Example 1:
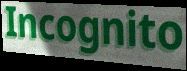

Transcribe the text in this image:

Incognito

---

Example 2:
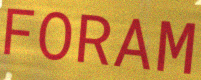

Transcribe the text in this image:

FORAM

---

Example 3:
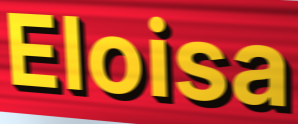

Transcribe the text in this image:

Eloisa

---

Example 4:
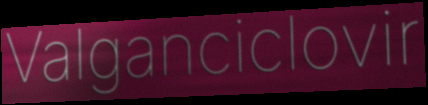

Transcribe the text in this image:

Valganciclovir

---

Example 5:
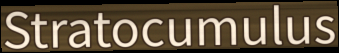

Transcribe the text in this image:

Stratocumulus